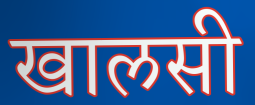
खालसी